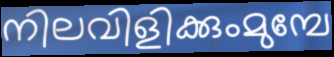
നിലവിളിക്കുംമുമ്പേ